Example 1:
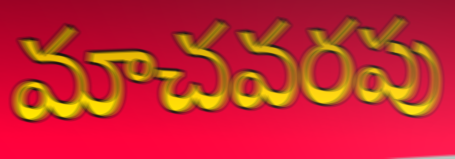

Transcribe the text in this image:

మాచవరపు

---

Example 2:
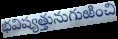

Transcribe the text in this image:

భవిష్యత్తునుగుఱించి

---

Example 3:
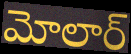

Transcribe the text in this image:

మోలార్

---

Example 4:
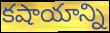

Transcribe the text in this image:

కషాయాన్ని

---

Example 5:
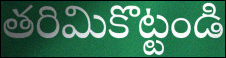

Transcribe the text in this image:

తరిమికొట్టండి